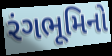
રંગભૂમિનો